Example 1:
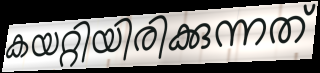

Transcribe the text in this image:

കയറ്റിയിരിക്കുന്നത്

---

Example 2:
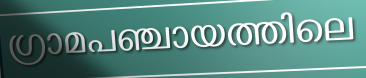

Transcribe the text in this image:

ഗ്രാമപഞ്ചായത്തിലെ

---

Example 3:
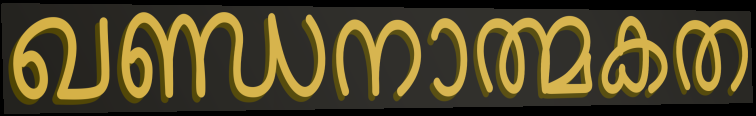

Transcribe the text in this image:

ഖണ്ഡനാത്മകത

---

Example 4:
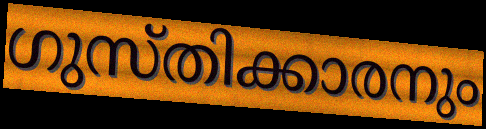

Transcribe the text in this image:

ഗുസ്തിക്കാരനും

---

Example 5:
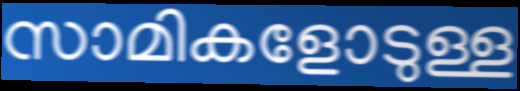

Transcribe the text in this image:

സാമികളോടുള്ള